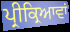
ਪ੍ਰੀਕ੍ਰਿਆਵਾਂ